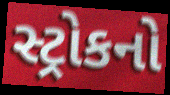
સ્ટ્રોકનો